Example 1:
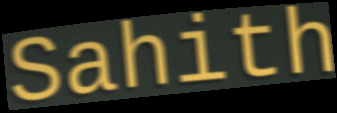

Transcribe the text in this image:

Sahith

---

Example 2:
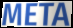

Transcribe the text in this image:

META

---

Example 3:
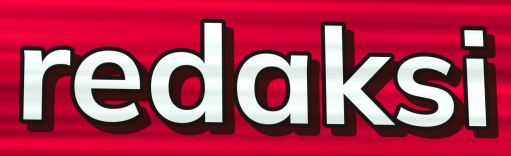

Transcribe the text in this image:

redaksi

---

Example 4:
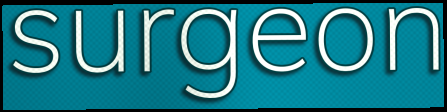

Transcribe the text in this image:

surgeon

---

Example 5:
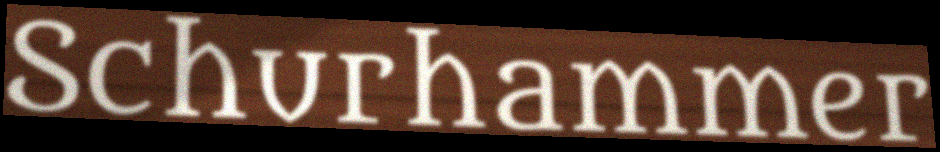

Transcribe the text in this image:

Schurhammer